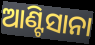
ଆଣ୍ଟିସାନା